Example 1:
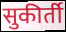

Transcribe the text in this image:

सुकीर्ती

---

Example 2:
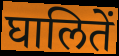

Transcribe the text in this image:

घालितें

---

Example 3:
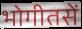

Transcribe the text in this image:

भोगीतसें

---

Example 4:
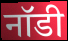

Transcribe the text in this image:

नॉडी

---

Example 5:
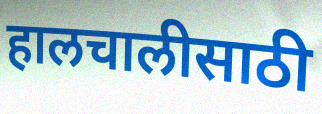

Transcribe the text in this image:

हालचालीसाठी